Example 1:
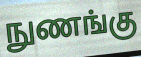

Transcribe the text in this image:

நுணங்கு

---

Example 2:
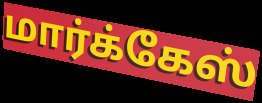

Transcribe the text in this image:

மார்க்கேஸ்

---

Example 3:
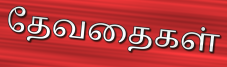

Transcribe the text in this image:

தேவதைகள்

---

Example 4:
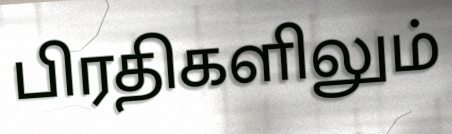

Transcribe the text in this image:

பிரதிகளிலும்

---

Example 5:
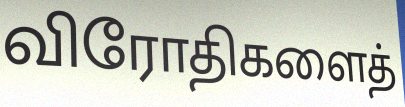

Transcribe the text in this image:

விரோதிகளைத்